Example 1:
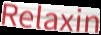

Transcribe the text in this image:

Relaxin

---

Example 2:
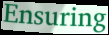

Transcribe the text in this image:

Ensuring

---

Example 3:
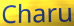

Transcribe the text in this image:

Charu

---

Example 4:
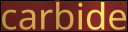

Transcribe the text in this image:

carbide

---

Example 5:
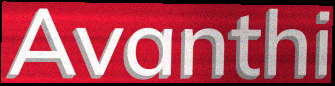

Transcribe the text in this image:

Avanthi